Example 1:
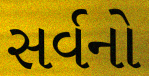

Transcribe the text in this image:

સર્વનો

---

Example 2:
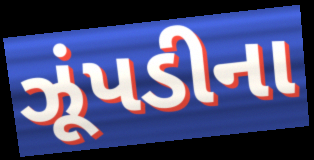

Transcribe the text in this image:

ઝૂંપડીના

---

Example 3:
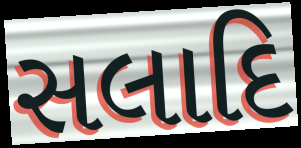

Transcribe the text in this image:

સલાદિ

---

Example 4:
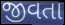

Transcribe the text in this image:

જીવતા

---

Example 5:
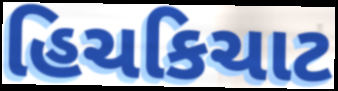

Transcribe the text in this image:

હિચકિચાટ